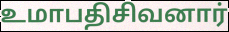
உமாபதிசிவனார்